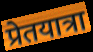
प्रेतयात्रा